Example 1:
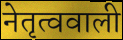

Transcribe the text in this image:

नेतृत्ववाली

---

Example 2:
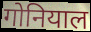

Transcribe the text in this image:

गोनियाल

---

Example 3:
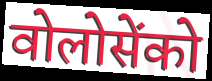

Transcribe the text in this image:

वोलोसेंको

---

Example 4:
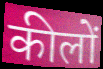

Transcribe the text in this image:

कीलों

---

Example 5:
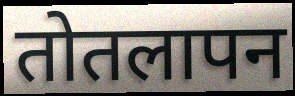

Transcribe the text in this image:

तोतलापन